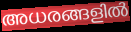
അധരങ്ങളിൽ